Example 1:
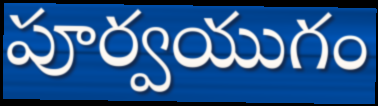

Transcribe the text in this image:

పూర్వయుగం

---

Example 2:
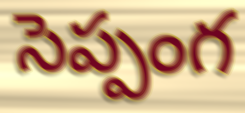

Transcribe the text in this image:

సెప్పంగ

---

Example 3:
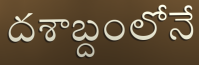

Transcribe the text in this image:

దశాబ్దంలోనే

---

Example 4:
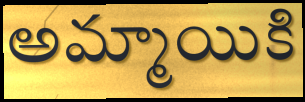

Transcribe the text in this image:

అమ్మాయికి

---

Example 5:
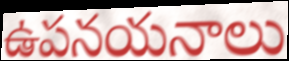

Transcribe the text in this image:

ఉపనయనాలు